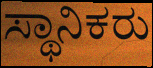
ಸ್ಥಾನಿಕರು